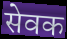
सेवक